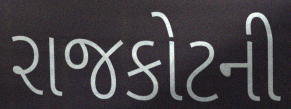
રાજકોટની